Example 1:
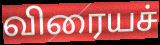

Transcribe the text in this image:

விரையச்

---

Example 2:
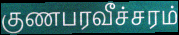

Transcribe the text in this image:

குணபரவீச்சரம்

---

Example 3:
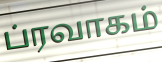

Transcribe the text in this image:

ப்ரவாகம்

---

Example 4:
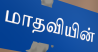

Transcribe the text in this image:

மாதவியின்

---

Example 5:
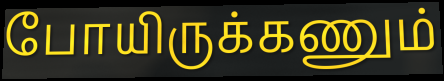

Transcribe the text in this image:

போயிருக்கணும்